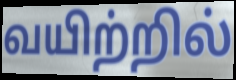
வயிற்றில்